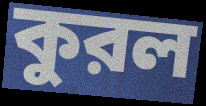
কুরল